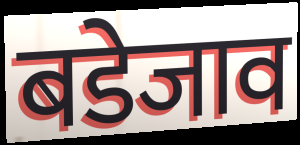
बडेजाव